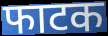
फाटक